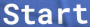
Start